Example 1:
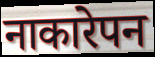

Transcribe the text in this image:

नाकारेपन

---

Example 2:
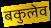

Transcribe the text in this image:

बकुलेव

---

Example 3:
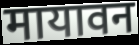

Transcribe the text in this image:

मायावन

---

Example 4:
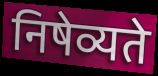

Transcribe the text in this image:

निषेव्यते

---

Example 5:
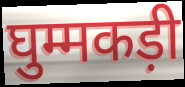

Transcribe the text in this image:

घुम्मकड़ी